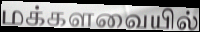
மக்களவையில்